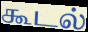
கூடல்